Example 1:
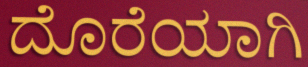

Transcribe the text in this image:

ದೊರೆಯಾಗಿ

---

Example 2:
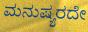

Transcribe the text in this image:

ಮನುಷ್ಯರದೇ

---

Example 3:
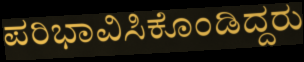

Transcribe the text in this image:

ಪರಿಭಾವಿಸಿಕೊಂಡಿದ್ದರು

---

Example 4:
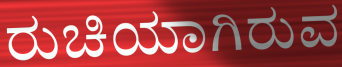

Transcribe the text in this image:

ರುಚಿಯಾಗಿರುವ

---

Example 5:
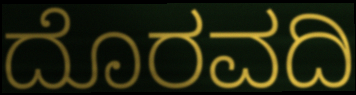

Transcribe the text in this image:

ದೊರವದಿ